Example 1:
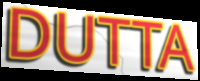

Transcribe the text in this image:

DUTTA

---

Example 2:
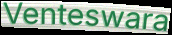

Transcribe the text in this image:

Venteswara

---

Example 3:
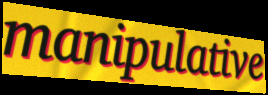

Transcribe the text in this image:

manipulative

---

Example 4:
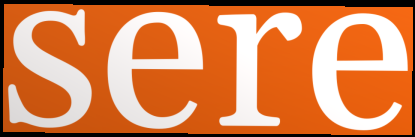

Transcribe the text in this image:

sere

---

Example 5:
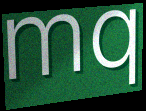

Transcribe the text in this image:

mq